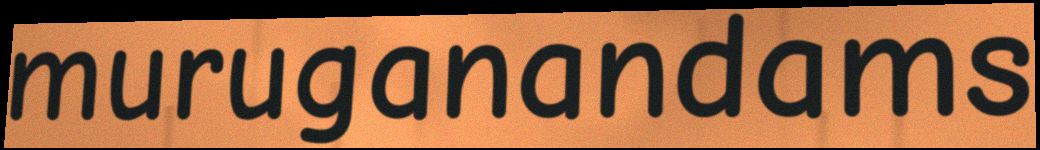
muruganandams